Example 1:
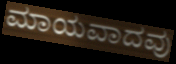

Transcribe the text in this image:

ಮಾಯವಾದವು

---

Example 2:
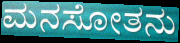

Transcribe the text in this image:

ಮನಸೋತನು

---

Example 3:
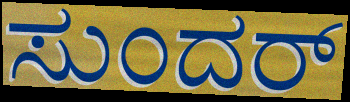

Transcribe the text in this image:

ಸುಂದರ್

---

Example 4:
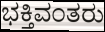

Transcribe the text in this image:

ಭಕ್ತಿವಂತರು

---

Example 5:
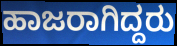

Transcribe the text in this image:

ಹಾಜರಾಗಿದ್ದರು